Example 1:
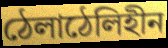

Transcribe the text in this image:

ঠেলাঠেলিহীন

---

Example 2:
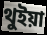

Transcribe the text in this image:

থুইয়া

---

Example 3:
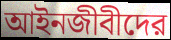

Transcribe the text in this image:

আইনজীবীদের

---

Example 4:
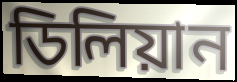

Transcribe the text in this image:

ডিলিয়ান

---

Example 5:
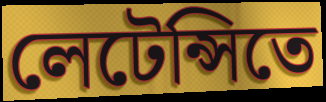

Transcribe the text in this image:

লেটেন্সিতে